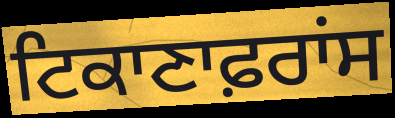
ਟਿਕਾਣਾਫ਼ਰਾਂਸ